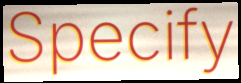
Specify